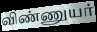
விண்ணுயர்